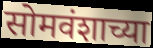
सोमवंशाच्या